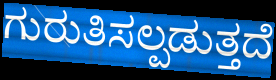
ಗುರುತಿಸಲ್ಪಡುತ್ತದೆ